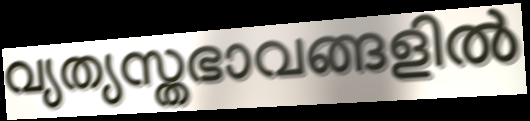
വ്യത്യസ്തഭാവങ്ങളിൽ